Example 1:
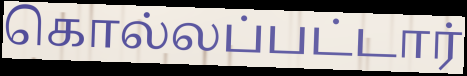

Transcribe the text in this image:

கொல்லப்பட்டார்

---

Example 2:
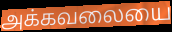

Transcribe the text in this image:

அக்கவலையை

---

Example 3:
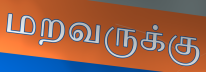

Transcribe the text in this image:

மறவருக்கு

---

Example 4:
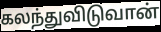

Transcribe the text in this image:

கலந்துவிடுவான்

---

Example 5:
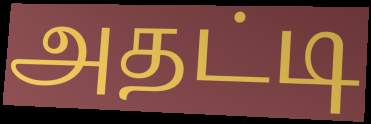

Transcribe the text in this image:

அதட்டி